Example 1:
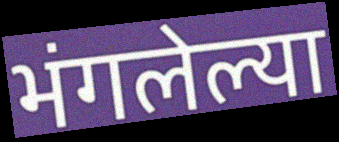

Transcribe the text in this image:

भंगलेल्या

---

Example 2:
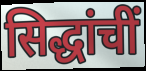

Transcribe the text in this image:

सिद्धांचीं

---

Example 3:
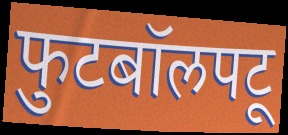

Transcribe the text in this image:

फुटबॉलपटू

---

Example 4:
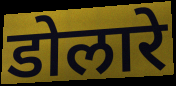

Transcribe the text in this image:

डोलारे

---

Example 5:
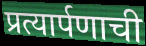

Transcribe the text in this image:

प्रत्यार्पणाची